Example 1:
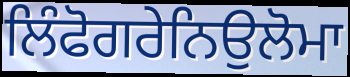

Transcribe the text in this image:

ਲਿੰਫੋਗਰੇਨਿਉਲੋਮਾ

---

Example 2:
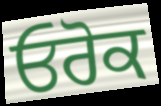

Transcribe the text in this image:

ਓਰੋਕ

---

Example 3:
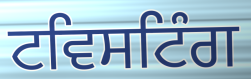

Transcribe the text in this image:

ਟਵਿਸਟਿੰਗ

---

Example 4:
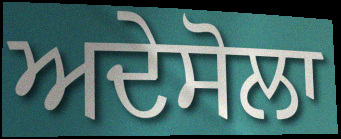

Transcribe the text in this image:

ਅਦੇਸੋਲਾ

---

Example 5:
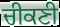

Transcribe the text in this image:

ਚੀਕਣੀ